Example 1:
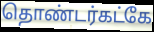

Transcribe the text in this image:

தொண்டர்கட்கே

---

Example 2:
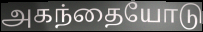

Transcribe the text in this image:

அகந்தையோடு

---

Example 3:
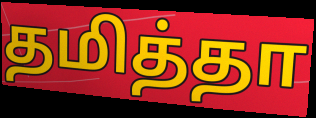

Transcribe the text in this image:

தமித்தா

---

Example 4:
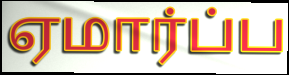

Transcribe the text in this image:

ஏமார்ப்ப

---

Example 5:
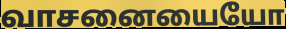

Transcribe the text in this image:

வாசனையையோ